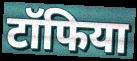
टॉफिया